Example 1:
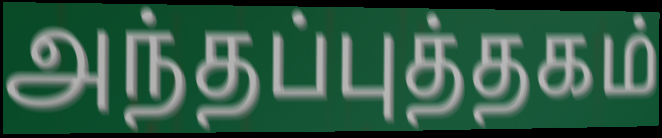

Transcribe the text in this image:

அந்தப்புத்தகம்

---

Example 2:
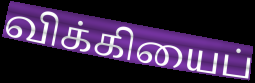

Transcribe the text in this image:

விக்கியைப்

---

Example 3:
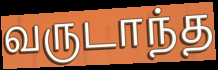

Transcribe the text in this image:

வருடாந்த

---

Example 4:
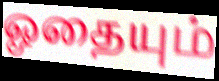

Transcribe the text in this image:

ஓதையும்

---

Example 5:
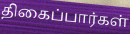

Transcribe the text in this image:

திகைப்பார்கள்